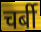
चर्बी